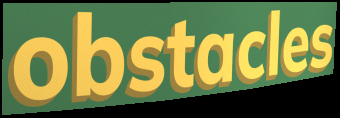
obstacles